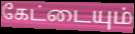
கேட்டையும்